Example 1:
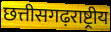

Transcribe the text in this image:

छत्तीसगढ़राष्ट्रीय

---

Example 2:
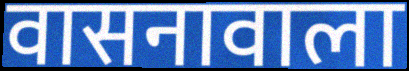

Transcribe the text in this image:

वासनावाला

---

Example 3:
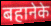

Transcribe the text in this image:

बहानेके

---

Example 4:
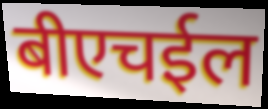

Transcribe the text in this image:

बीएचईल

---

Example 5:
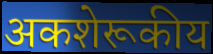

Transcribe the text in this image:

अकशेरूकीय